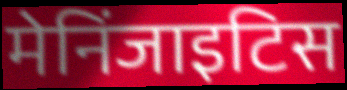
मेनिंजाइटिस